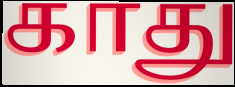
காது